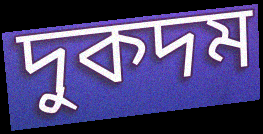
দুকদম